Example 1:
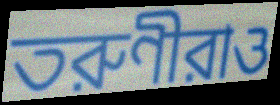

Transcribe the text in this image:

তরুণীরাও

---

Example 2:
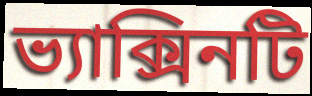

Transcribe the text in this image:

ভ্যাক্সিনটি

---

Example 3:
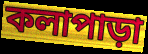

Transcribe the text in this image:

কলাপাড়া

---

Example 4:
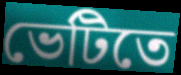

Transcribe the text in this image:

ভেটিতে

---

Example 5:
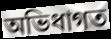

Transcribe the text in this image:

অভিধাগত